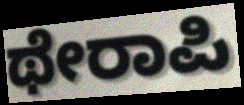
ಥೇರಾಪಿ